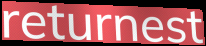
returnest